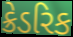
ક્રેડરિક